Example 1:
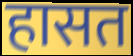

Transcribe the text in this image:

हासत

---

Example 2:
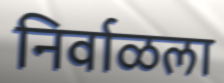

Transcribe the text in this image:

निर्वाळला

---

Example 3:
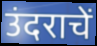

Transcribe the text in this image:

उंदराचें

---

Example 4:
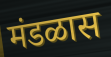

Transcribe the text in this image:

मंडळास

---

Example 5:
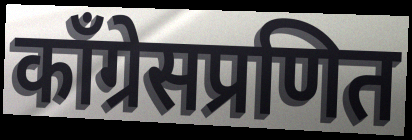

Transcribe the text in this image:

काँग्रेसप्रणित